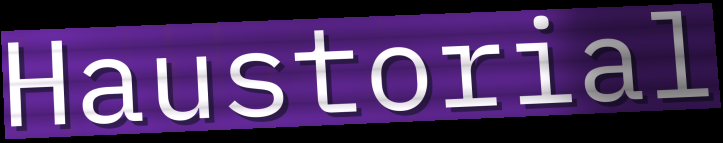
Haustorial